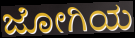
ಜೋಗಿಯ